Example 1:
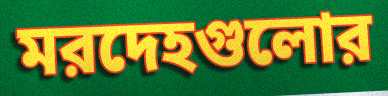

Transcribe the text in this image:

মরদেহগুলোর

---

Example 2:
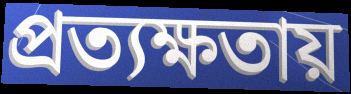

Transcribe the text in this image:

প্রত্যক্ষতায়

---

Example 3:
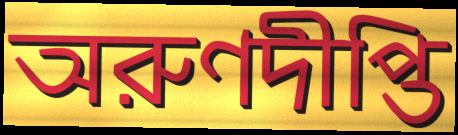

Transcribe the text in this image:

অরুণদীপ্তি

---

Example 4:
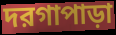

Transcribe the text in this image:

দরগাপাড়া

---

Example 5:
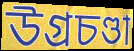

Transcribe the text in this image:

উগ্রচণ্ডা